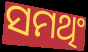
ସମଥିଂ